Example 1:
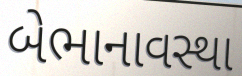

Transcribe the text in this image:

બેભાનાવસ્થા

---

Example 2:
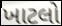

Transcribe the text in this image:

ખાટલો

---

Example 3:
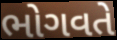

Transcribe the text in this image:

ભોગવતે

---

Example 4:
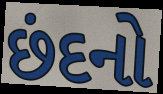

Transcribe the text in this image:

છંદનો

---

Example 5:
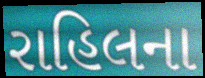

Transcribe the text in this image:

રાહિલના